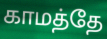
காமத்தே